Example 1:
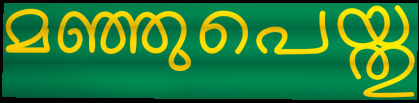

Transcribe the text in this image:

മഞ്ഞുപെയ്തു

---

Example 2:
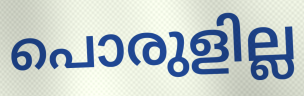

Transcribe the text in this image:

പൊരുളില്ല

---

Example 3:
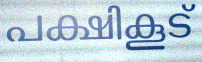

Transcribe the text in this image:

പക്ഷികൂട്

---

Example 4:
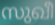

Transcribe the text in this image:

സുഖീ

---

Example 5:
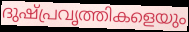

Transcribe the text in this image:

ദുഷ്പ്രവൃത്തികളെയും